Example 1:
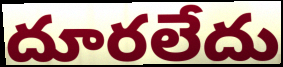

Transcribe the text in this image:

దూరలేదు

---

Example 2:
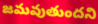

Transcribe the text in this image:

జమవుతుందని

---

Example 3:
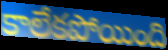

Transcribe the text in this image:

కాలేకపోయింది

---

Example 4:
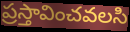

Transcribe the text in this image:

ప్రస్తావించవలసి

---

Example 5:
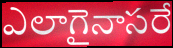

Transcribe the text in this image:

ఎలాగైనాసరే